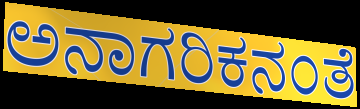
ಅನಾಗರಿಕನಂತೆ